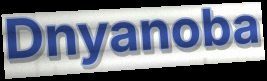
Dnyanoba